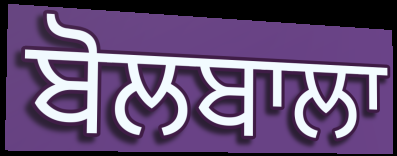
ਬੋਲਬਾਲਾ